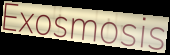
Exosmosis